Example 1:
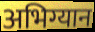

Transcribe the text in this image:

अभिग्यान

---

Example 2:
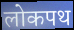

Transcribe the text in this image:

लोकपथ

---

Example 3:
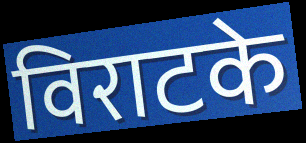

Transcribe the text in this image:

विराटके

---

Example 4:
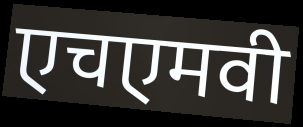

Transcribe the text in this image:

एचएमवी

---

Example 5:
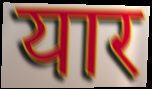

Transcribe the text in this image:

यार